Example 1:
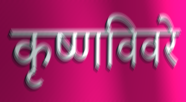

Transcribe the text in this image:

कृष्णविवरे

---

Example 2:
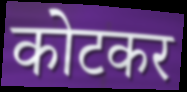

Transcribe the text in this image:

कोटकर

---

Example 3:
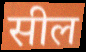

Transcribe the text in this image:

सील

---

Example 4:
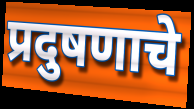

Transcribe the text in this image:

प्रदुषणाचे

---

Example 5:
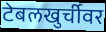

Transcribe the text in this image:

टेबलखुर्चीवर